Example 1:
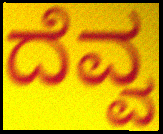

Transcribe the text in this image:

ದೆವ್ವ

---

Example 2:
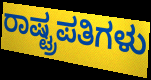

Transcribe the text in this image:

ರಾಷ್ಟ್ರಪತಿಗಳು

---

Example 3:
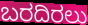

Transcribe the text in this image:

ಬರದಿರಲು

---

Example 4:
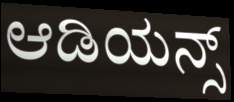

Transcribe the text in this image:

ಆಡಿಯನ್ಸ್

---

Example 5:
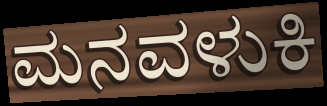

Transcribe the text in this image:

ಮನವಳುಕಿ